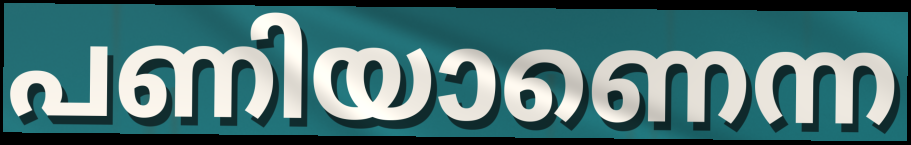
പണിയാണെന്ന